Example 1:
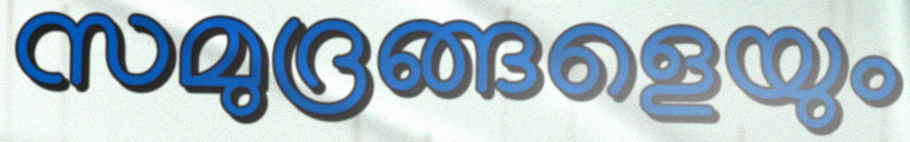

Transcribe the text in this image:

സമുദ്രങ്ങളെയും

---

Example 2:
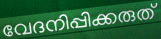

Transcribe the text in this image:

വേദനിപ്പിക്കരുത്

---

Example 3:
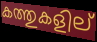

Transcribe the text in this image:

കത്തുകളില്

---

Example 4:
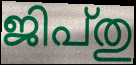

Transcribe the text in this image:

ജിപ്തു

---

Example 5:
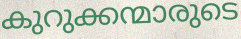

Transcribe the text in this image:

കുറുക്കന്മാരുടെ